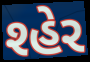
શ્હેર